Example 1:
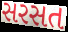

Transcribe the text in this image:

સરસત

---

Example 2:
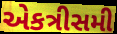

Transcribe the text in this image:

એકત્રીસમી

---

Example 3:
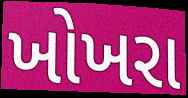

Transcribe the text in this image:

ખોખરા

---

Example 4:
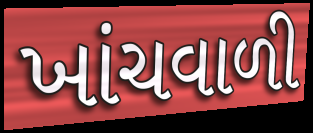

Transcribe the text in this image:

ખાંચવાળી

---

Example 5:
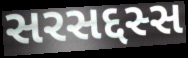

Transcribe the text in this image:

સરસદ્દસ્સ